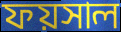
ফয়সাল